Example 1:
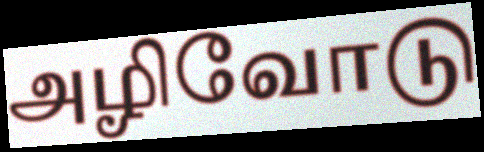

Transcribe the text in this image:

அழிவோடு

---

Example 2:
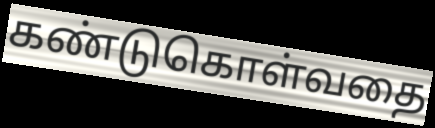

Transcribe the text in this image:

கண்டுகொள்வதை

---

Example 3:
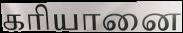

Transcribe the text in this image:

கரியானை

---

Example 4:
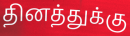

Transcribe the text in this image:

தினத்துக்கு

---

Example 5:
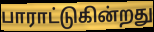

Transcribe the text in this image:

பாராட்டுகின்றது